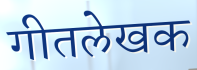
गीतलेखक